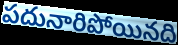
పదునారిపోయినది